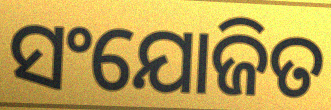
ସଂଯୋଜିତ